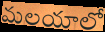
మలయాలో